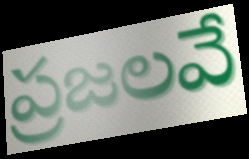
ప్రజలవే